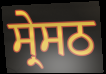
ਸ੍ਰੇਸਠ